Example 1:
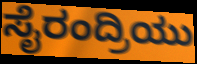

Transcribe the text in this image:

ಸೈರಂದ್ರಿಯು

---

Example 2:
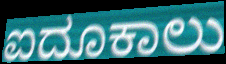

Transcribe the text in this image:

ಐದೂಕಾಲು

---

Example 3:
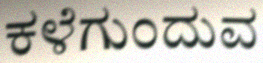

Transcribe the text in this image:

ಕಳೆಗುಂದುವ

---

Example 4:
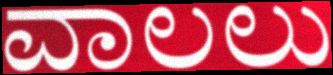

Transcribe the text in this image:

ವಾಲಲು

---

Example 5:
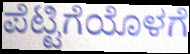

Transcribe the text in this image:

ಪೆಟ್ಟಿಗೆಯೊಳಗೆ